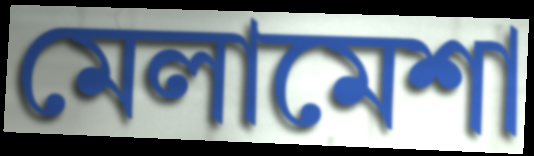
মেলামেশা